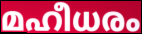
മഹീധരം